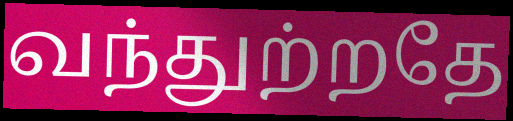
வந்துற்றதே